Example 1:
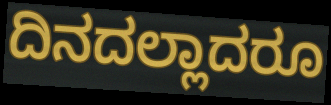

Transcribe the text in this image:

ದಿನದಲ್ಲಾದರೂ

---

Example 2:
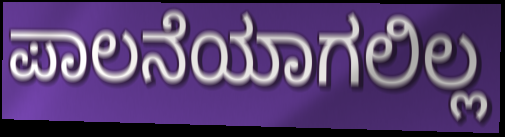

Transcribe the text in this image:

ಪಾಲನೆಯಾಗಲಿಲ್ಲ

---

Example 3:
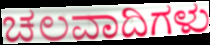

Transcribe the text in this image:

ಚಲವಾದಿಗಳು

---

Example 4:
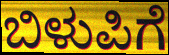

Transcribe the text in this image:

ಬಿಳುಪಿಗೆ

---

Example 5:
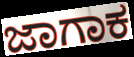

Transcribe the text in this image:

ಜಾಗಾಕ